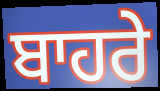
ਬਾਹਰੇ